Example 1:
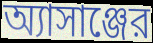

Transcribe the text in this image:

অ্যাসাঞ্জের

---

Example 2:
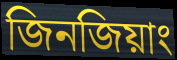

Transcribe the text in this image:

জিনজিয়াং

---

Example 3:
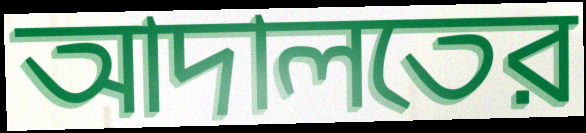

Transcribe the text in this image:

আদালতের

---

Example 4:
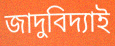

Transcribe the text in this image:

জাদুবিদ্যাই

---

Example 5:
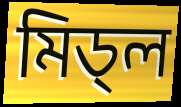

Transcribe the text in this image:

মিড্‌ল